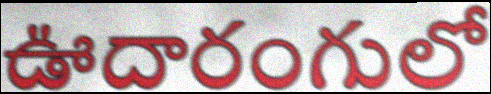
ఊదారంగులో